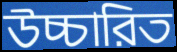
উচ্চারিত